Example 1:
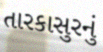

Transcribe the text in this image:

તારકાસુરનું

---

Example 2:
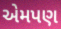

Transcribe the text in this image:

એમપણ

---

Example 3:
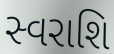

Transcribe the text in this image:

સ્વરાશિ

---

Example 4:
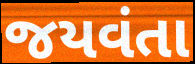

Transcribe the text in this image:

જયવંતા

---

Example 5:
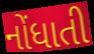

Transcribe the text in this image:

નોંધાતી